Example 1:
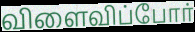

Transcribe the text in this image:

விளைவிப்போர்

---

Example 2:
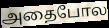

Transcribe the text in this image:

அதைபோல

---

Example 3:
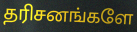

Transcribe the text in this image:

தரிசனங்களே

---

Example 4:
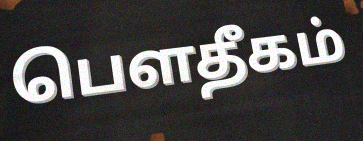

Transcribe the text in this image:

பௌதீகம்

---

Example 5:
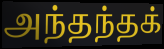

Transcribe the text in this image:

அந்தந்தக்